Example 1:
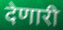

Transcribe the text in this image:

देणारी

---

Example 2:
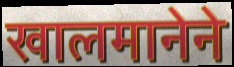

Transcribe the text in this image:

खालमानेने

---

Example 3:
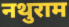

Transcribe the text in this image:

नथुराम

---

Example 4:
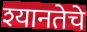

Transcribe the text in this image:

श्यानतेचे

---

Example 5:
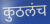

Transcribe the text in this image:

कुठलंच